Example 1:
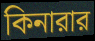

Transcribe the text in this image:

কিনারার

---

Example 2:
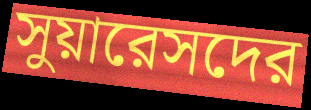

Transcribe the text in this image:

সুয়ারেসদের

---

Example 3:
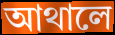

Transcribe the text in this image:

আথালে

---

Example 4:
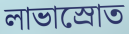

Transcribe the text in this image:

লাভাস্রোত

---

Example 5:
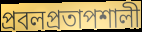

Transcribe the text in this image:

প্রবলপ্রতাপশালী